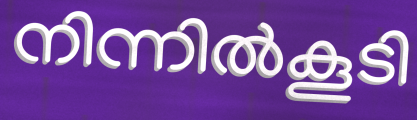
നിന്നിൽകൂടി